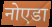
नोएडा